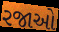
રજાઓ